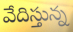
వేదిస్తున్న